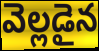
వెల్లడైన